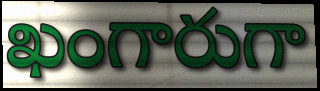
ఖంగారుగా